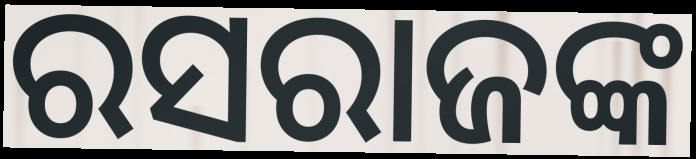
ରସରାଜଙ୍କ